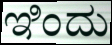
ಇಿಂದು